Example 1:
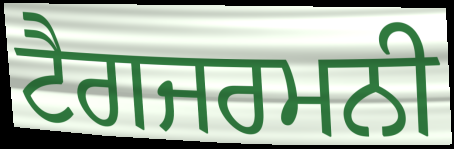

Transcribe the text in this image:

ਟੈਗਜਰਮਨੀ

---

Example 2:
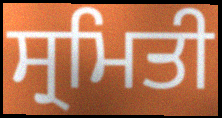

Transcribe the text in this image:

ਸ੍ਰਮਿਤੀ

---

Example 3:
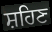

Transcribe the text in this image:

ਸ਼ਹਿਣ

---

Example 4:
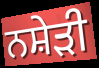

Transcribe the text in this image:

ਨਸ਼ੇੜੀ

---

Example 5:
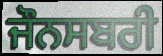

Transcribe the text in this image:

ਜੌਨਸਬਰੀ